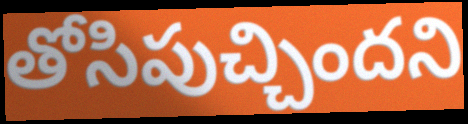
తోసిపుచ్చిందని